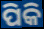
ପିକି